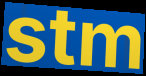
stm